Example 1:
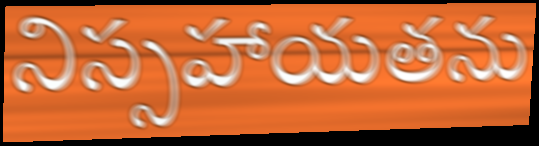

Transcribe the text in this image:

నిస్సహాయతను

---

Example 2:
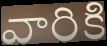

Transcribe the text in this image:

వారికి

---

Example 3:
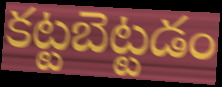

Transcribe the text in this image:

కట్టబెట్టడం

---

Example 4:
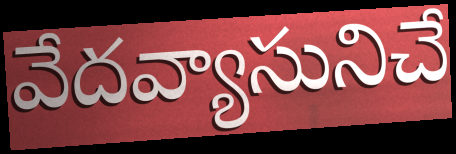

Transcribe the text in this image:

వేదవ్యాసునిచే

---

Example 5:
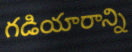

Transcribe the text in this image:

గడియారాన్ని